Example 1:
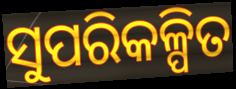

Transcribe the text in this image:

ସୁପରିକଳ୍ପିତ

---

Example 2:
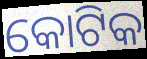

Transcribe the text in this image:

କୋଟିକ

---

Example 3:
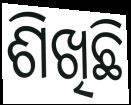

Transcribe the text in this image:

ଶିଖିଛି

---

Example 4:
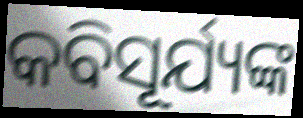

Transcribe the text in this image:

କବିସୂର୍ଯ୍ୟଙ୍କ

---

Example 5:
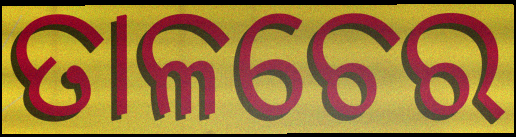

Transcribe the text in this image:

ତାଳଚେର